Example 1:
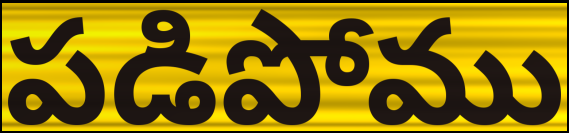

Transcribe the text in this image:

పడిపోము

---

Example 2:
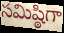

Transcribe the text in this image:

సమిష్ఠిగా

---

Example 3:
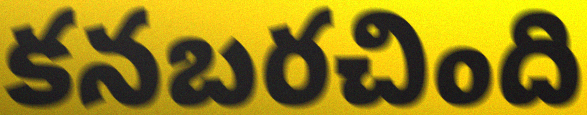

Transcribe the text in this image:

కనబరచింది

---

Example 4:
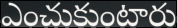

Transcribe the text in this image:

ఎంచుకుంటారు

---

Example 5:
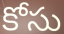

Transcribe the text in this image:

కోసు